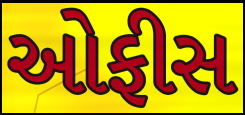
ઓફીસ